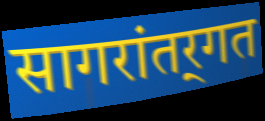
सागरांतर्गत